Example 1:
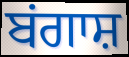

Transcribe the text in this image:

ਬਂਗਾਸ਼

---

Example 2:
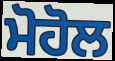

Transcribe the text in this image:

ਮੋਹੋਲ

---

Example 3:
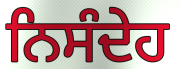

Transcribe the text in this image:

ਨਿਸੰਦੇਹ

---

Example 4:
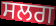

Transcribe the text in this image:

ਸਲਗ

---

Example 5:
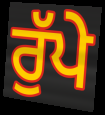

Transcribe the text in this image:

ਰੁੱਪੇ